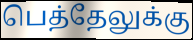
பெத்தேலுக்கு